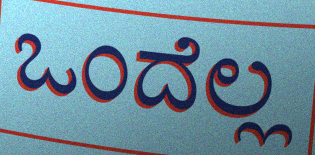
ಒಂದೆಲ್ಲ